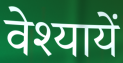
वेश्यायें